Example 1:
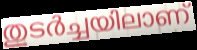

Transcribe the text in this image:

തുടർച്ചയിലാണ്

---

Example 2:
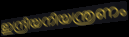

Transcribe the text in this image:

ഇന്ദ്രിയനിയന്ത്രണം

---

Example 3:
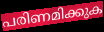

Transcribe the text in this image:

പരിണമിക്കുക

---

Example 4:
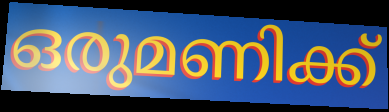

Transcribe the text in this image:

ഒരുമണിക്ക്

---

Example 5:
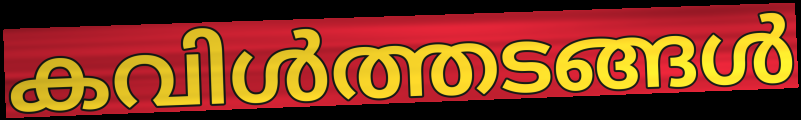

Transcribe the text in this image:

കവിൾത്തടങ്ങൾ